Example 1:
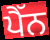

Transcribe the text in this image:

ਪੈੱਨ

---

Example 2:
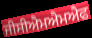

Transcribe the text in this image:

ਜੀਸੀਐਮਐਮਐਫ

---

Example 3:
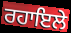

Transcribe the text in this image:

ਰਹਾਇਲੇ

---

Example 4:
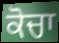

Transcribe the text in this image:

ਕੋਚਾ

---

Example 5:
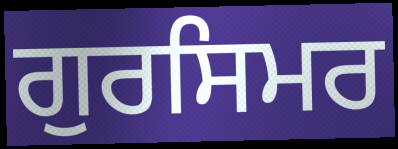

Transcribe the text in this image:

ਗੁਰਸਿਮਰ